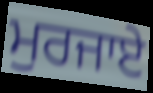
ਮੁਰਜਾਏ